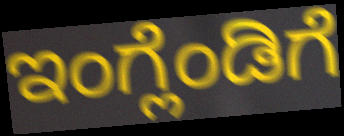
ಇಂಗ್ಲೆಂಡಿಗೆ